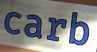
carb